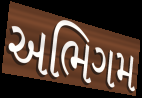
અભિગમ